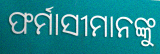
ଫର୍ମାସୀମାନଙ୍କୁ